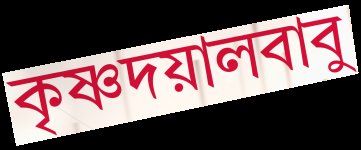
কৃষ্ণদয়ালবাবু